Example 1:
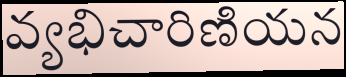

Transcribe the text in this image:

వ్యభిచారిణియన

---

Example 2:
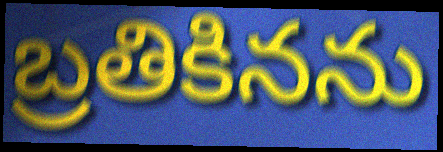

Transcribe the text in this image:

బ్రతికినను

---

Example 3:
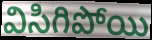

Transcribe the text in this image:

విసిగిపోయి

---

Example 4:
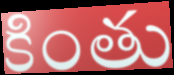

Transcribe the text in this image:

కింతు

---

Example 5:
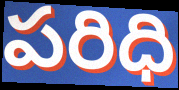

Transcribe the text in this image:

పరిధి